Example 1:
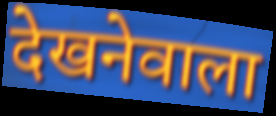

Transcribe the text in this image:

देखनेवाला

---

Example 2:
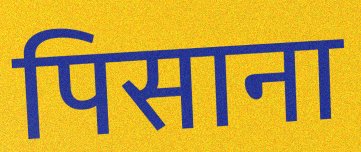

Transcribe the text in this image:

पिसाना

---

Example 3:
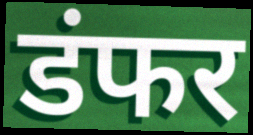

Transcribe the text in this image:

डंफर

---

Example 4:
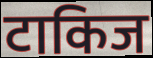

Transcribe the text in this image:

टाकिज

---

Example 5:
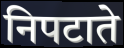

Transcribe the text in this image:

निपटाते